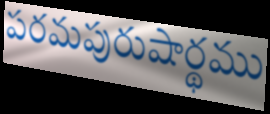
పరమపురుషార్థము